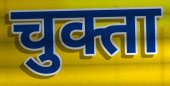
चुक्ता